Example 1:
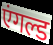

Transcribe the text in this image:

एंगल्ड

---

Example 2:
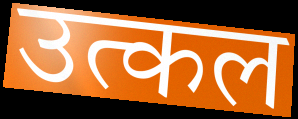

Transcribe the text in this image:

उत्कल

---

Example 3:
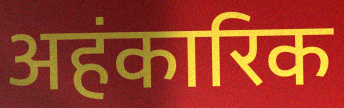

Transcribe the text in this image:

अहंकारिक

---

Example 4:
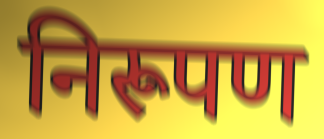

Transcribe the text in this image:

निरूपण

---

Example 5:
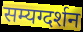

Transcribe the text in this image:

सम्यग्दर्शन